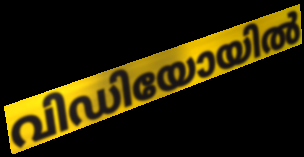
വിഡിയോയിൽ